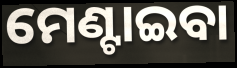
ମେଣ୍ଟାଇବା